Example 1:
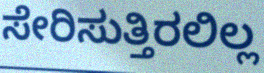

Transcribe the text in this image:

ಸೇರಿಸುತ್ತಿರಲಿಲ್ಲ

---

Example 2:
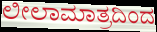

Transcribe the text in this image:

ಲೀಲಾಮಾತ್ರದಿಂದ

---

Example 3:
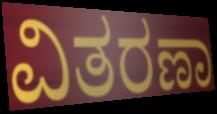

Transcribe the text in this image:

ವಿತರಣಾ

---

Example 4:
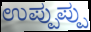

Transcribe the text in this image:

ಉಪ್ಪುಪ್ಪು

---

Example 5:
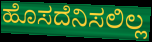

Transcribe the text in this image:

ಹೊಸದೆನಿಸಲಿಲ್ಲ